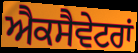
ਐਕਸੈਵੇਟਰਾਂ